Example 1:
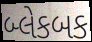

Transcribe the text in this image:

બ્લેકબક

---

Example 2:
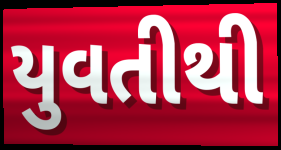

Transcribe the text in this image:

યુવતીથી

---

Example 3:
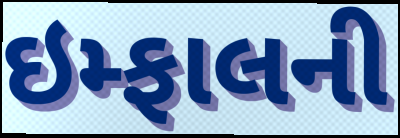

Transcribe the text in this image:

ઇમ્ફાલની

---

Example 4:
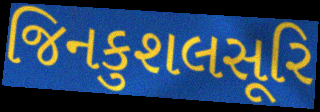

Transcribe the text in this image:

જિનકુશલસૂરિ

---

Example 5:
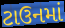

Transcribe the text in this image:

ટાઉનમાં